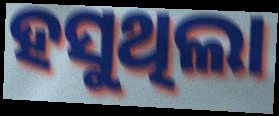
ହସୁଥିଲା